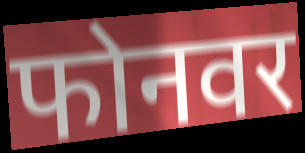
फोनवर